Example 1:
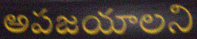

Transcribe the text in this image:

అపజయాలని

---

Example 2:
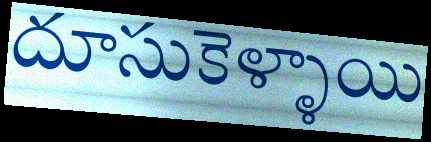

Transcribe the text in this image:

దూసుకెళ్ళాయి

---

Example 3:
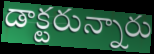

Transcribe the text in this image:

డాక్టరున్నారు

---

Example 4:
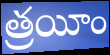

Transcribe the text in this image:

త్రయీం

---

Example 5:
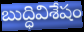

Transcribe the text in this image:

బుద్ధివిశేషం